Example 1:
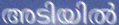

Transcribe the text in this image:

അടിയിൽ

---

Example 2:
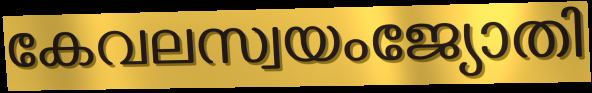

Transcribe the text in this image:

കേവലസ്വയംജ്യോതി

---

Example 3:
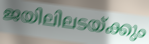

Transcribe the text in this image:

ജയിലിലടയ്ക്കും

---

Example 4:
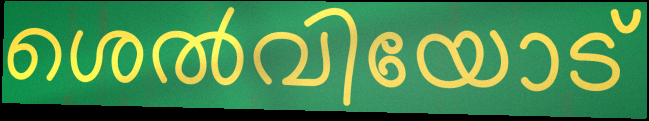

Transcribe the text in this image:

ശെൽവിയോട്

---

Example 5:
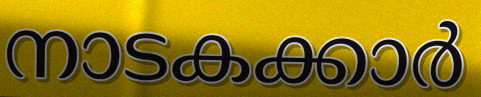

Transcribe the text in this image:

നാടകക്കാർ